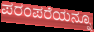
ಪರಂಪರೆಯನ್ನೂ